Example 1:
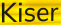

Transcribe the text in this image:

Kiser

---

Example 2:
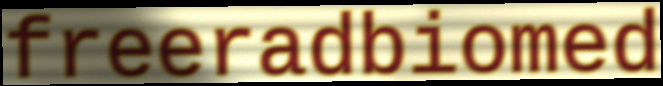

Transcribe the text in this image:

freeradbiomed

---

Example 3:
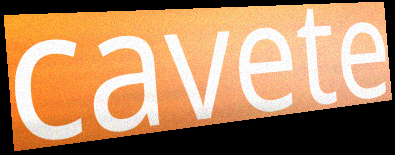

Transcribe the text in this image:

cavete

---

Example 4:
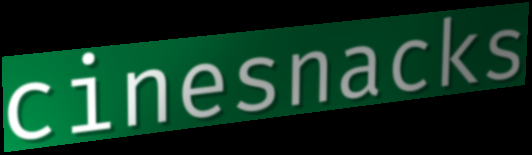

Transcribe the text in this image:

cinesnacks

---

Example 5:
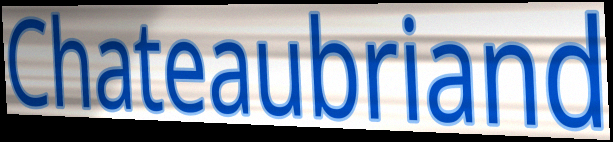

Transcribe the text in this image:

Chateaubriand